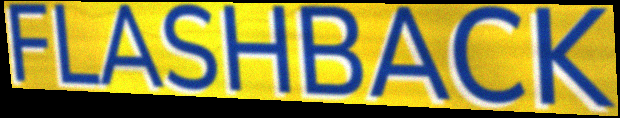
FLASHBACK